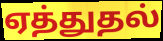
ஏத்துதல்